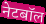
नेटबॉल